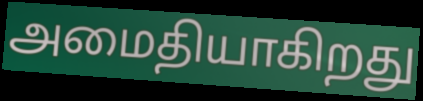
அமைதியாகிறது